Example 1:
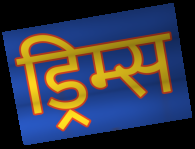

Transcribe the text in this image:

ड्रिम्स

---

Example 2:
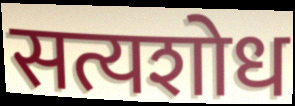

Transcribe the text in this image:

सत्यशोध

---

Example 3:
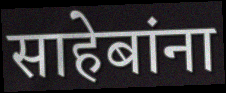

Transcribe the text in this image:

साहेबांना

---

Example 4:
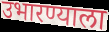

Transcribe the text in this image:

उभारण्याला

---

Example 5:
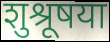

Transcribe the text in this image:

शुश्रूषया